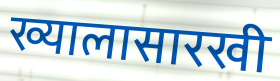
ख्यालासारखी